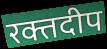
रक्तदीप